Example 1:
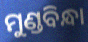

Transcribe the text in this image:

ମୁଣ୍ଡବିନ୍ଧା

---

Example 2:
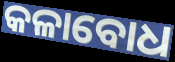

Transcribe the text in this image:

କଳାବୋଧ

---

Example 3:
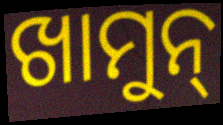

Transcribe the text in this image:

ଖାମୁନ୍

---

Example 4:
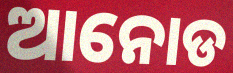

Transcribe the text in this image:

ଆନୋଡ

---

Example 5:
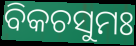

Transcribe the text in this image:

ବିକଚସୁମଃ